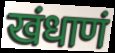
खंधाणं